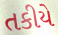
તકીયે